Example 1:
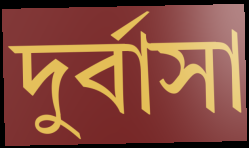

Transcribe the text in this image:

দুর্বাসা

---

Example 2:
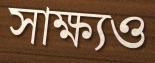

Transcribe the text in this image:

সাক্ষ্যও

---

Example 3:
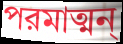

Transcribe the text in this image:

পরমাত্মন্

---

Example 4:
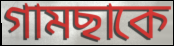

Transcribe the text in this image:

গামছাকে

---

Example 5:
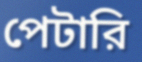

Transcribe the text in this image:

পেটারি